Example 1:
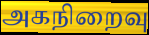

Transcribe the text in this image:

அகநிறைவு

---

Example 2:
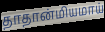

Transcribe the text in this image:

தாதான்மியமாய்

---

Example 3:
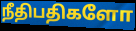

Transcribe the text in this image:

நீதிபதிகளோ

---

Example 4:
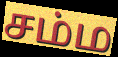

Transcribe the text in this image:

சம்ம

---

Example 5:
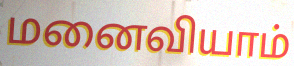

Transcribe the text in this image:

மனைவியாம்